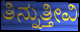
ತಿನ್ನುತ್ತೀವಿ